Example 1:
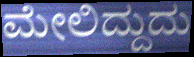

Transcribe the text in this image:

ಮೇಲಿದ್ದುದು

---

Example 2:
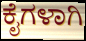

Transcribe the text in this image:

ಕೈಗಳಾಗಿ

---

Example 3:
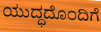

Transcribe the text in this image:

ಯುದ್ಧದೊಂದಿಗೆ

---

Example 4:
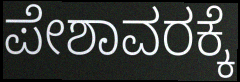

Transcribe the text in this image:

ಪೇಶಾವರಕ್ಕೆ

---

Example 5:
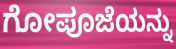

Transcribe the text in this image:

ಗೋಪೂಜೆಯನ್ನು